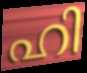
ഹി